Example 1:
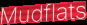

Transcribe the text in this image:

Mudflats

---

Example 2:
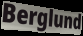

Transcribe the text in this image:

Berglund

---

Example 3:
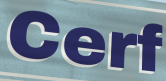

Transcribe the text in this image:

Cerf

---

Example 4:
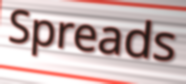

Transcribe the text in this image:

Spreads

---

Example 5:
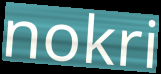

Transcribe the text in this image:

nokri